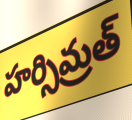
హర్సిమ్రత్